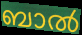
ബാൽ